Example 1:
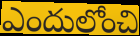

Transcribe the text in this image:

ఎందులోంచి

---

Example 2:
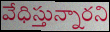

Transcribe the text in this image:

వేధిస్తున్నారని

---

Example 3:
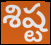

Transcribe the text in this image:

శిష్ట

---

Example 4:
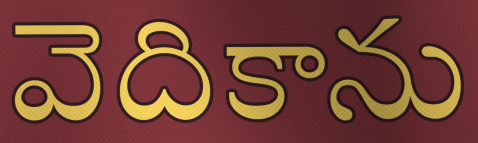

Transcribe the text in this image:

వెదికాను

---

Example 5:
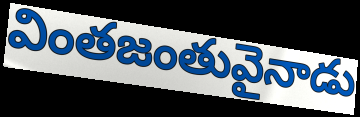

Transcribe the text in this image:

వింతజంతువైనాడు